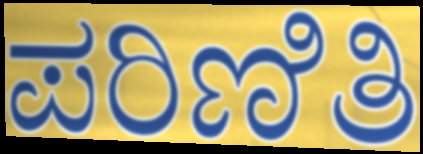
ಪರಿಣಿತಿ